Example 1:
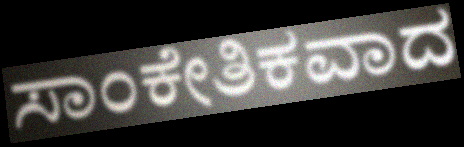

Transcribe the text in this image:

ಸಾಂಕೇತಿಕವಾದ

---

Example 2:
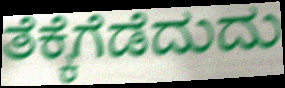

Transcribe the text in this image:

ತೆಕ್ಕೆಗೆಡೆದುದು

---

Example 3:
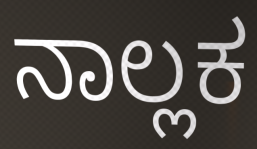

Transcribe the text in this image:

ನಾಲ್ಲಕ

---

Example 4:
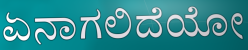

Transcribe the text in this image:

ಏನಾಗಲಿದೆಯೋ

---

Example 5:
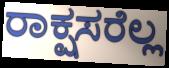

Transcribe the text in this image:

ರಾಕ್ಷಸರೆಲ್ಲ